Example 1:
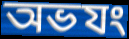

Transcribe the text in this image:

অভযং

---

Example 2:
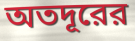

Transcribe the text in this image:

অতদূরের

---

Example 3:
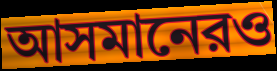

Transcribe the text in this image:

আসমানেরও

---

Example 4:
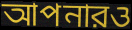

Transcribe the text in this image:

আপনারও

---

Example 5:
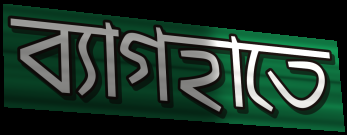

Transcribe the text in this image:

ব্যাগহাতে